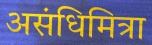
असंधिमित्रा